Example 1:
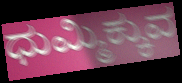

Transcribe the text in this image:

ಧುಮ್ಮಿಕ್ಕುವ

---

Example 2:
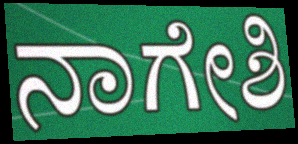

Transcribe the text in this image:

ನಾಗೇಶಿ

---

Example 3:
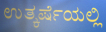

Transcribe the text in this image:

ಉತ್ಕರ್ಷೆಯಲ್ಲಿ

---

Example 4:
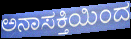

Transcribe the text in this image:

ಅನಾಸಕ್ತಿಯಿಂದ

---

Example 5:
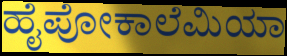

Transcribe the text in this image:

ಹೈಪೋಕಾಲೆಮಿಯಾ